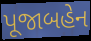
પૂજાબહેન